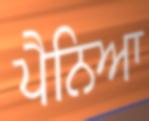
ਪੈਨਿਆ